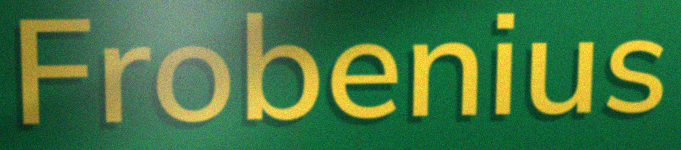
Frobenius